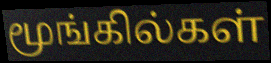
மூங்கில்கள்